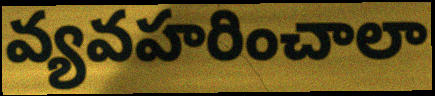
వ్యవహరించాలా